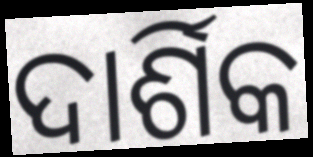
ଦାର୍ଶିକ